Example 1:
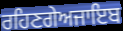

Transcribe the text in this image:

ਰਹਿਣਗੇਅਜਾਇਬ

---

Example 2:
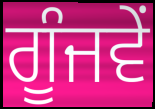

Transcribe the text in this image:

ਗੂੰਜਵੇਂ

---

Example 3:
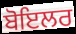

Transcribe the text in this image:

ਬੋਇਲਰ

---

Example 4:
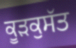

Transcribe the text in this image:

ਕੂੜਕੁਸੱਤ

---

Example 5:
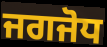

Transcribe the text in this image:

ਜਗਜੋਧ